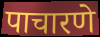
पाचारणे